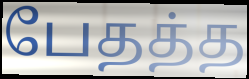
பேதத்த